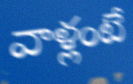
వాళ్లంటే